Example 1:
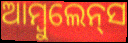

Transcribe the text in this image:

ଆମ୍ବୁଲେନ୍‍ସ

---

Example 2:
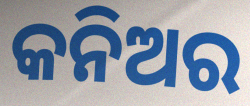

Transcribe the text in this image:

କନିଅର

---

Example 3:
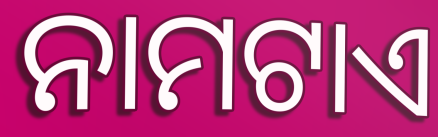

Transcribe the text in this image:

ନାମଟାଏ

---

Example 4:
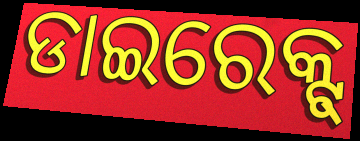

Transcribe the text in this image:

ଡାଇରେକ୍ଟ୍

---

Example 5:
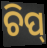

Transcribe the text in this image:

ଚିପ୍